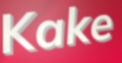
Kake